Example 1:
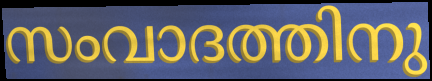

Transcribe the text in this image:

സംവാദത്തിനു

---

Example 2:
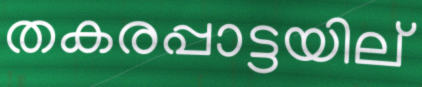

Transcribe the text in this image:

തകരപ്പാട്ടയില്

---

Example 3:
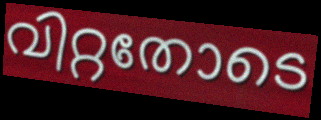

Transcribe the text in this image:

വിറ്റതോടെ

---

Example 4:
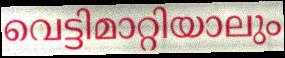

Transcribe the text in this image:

വെട്ടിമാറ്റിയാലും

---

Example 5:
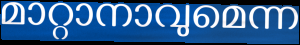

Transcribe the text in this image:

മാറ്റാനാവുമെന്ന